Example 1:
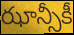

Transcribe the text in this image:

ఝాన్సీకీ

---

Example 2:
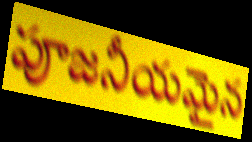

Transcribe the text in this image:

పూజనీయమైన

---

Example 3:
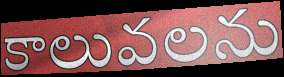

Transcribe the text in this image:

కాలువలను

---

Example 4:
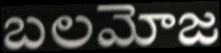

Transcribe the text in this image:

బలమోజ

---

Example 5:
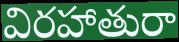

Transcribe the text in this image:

విరహాతురా